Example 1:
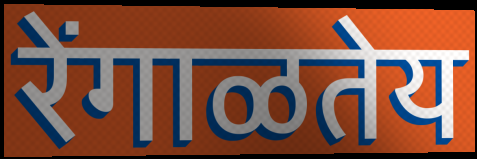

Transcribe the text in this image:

रेंगाळतेय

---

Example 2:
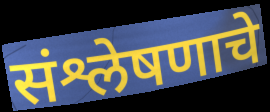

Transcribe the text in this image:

संश्लेषणाचे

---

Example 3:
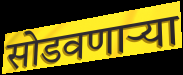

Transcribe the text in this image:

सोडवणाऱ्या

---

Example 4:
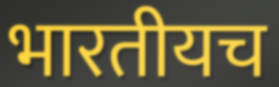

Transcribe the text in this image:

भारतीयच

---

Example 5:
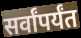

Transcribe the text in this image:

सर्वांपर्यंत